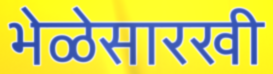
भेळेसारखी